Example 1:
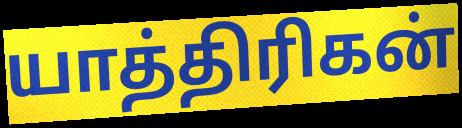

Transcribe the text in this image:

யாத்திரிகன்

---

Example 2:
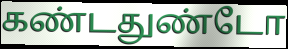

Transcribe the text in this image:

கண்டதுண்டோ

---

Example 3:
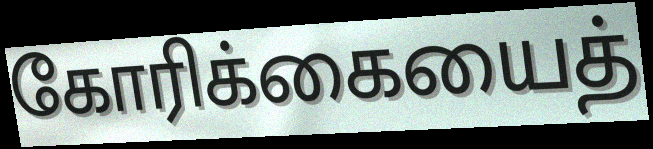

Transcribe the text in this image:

கோரிக்கையைத்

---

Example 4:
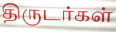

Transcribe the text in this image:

திருடர்கள்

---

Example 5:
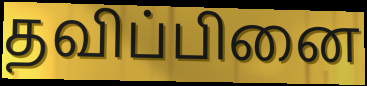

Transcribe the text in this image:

தவிப்பினை